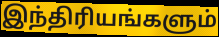
இந்திரியங்களும்